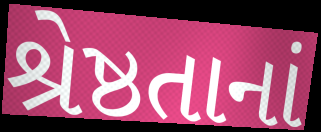
શ્રેષ્ઠતાનાં